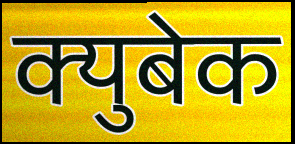
क्युबेक